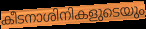
കീടനാശിനികളുടെയും